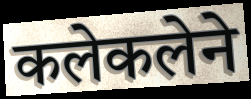
कलेकलेने